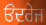
ਓਂਦਰੇਜ